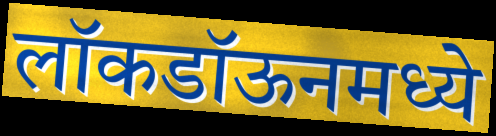
लॉकडॉऊनमध्ये